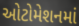
ઓટોમેશનમાં